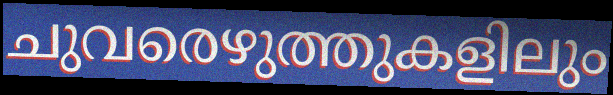
ചുവരെഴുത്തുകളിലും